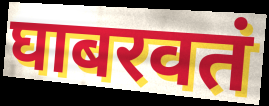
घाबरवतं